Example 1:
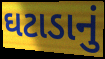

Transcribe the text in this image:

ઘટાડાનું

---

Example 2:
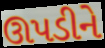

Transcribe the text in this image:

ઊપડીને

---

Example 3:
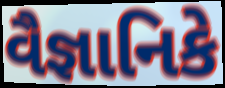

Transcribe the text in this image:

વૈજ્ઞાનિકે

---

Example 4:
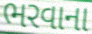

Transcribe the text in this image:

ભરવાના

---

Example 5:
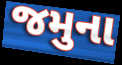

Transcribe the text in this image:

જમુના